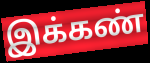
இக்கண்